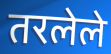
तरलेले